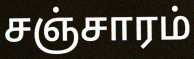
சஞ்சாரம்